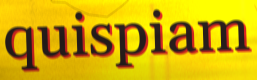
quispiam